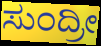
ಸುಂದ್ರೀ